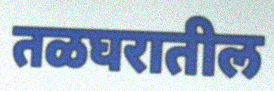
तळघरातील